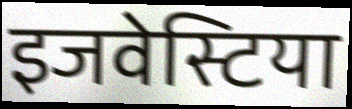
इजवेस्टिया